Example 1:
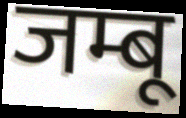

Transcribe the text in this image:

जम्बू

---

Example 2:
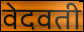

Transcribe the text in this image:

वेदवती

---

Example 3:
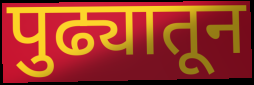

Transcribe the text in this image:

पुढ्यातून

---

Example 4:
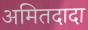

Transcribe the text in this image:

अमितदादा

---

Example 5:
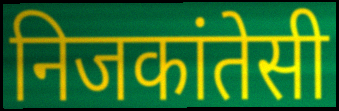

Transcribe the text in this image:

निजकांतेसी